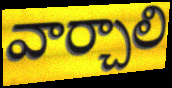
వార్చాలి